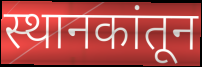
स्थानकांतून